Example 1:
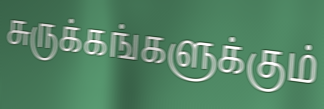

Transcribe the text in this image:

சுருக்கங்களுக்கும்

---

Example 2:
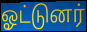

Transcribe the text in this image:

ஓட்டுனர்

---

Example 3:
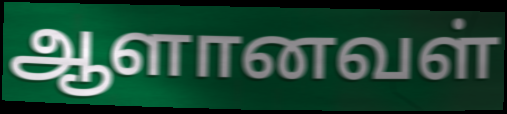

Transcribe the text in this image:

ஆளானவள்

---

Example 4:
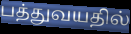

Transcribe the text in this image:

பத்துவயதில்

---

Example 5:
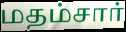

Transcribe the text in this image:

மதம்சார்